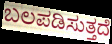
ಬಲಪಡಿಸುತ್ತದೆ